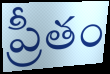
ప్రీతం